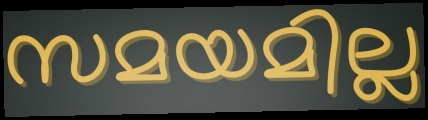
സമയമില്ല